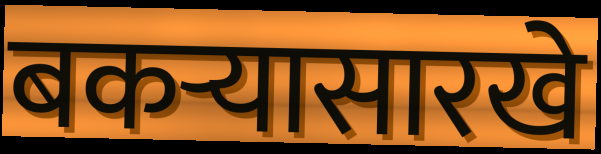
बकऱ्यासारखे